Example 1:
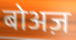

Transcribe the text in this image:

बोअज़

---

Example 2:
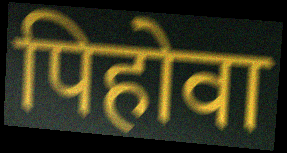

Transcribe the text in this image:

पिहोवा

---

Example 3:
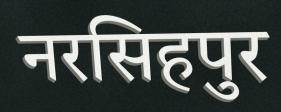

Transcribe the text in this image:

नरसिहपुर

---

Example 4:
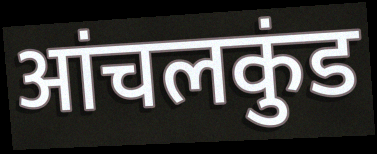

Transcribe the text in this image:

आंचलकुंड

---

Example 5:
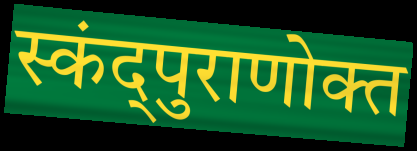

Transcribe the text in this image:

स्कंद्पुराणोक्त